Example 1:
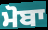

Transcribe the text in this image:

ਮੋਬਾ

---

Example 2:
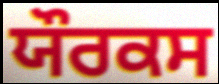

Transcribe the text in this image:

ਯੌਰਕਸ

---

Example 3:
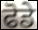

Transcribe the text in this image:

ਫੋਡੇ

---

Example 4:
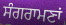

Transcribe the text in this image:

ਸੰਗਰਾਮਣਾਂ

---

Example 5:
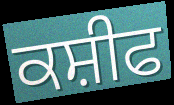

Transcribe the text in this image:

ਕਸ਼ੀਫ